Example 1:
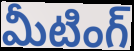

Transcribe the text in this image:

మీటింగ్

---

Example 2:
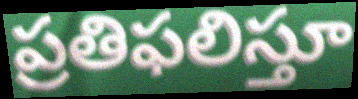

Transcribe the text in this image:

ప్రతిఫలిస్తూ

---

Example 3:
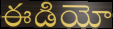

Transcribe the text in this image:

ఈడియో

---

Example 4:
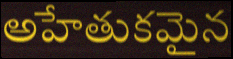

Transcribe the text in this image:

అహేతుకమైన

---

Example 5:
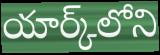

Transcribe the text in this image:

యార్క్‌లోని